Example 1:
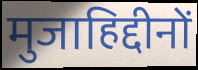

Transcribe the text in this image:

मुजाहिद्दीनों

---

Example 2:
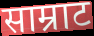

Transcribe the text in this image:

साम्राट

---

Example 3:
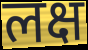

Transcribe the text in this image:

लक्ष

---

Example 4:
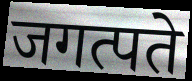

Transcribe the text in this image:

जगत्पते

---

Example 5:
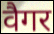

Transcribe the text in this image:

वैगर